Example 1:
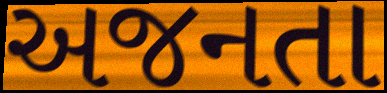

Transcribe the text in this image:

અજનતા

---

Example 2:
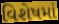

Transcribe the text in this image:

વિશેષમાં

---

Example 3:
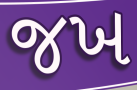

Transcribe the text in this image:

જખ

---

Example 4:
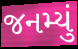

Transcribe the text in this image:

જનમ્યું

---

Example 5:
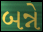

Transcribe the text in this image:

બન્ને